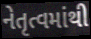
નેતૃત્વમાંથી